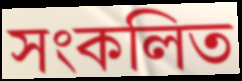
সংকলিত